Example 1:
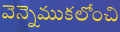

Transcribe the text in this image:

వెన్నెముకలోంచి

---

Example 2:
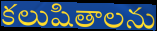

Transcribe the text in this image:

కలుషితాలను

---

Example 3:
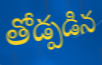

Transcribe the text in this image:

తోడ్పడిన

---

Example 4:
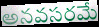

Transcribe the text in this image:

అనవసరమే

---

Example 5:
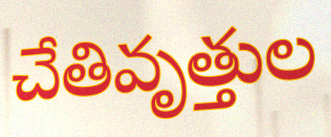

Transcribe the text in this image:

చేతివృత్తుల